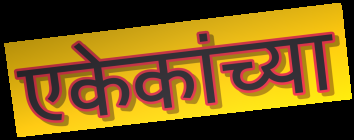
एकेकांच्या